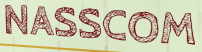
NASSCOM